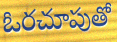
ఓరచూపుతో